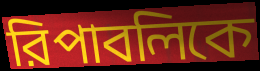
রিপাবলিকে